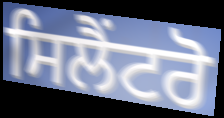
ਸਿਲੈਂਟਰੋ